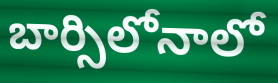
బార్సిలోనాలో